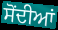
ਸੋਂਦੀਆਂ